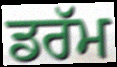
ਡਰੱਮ